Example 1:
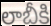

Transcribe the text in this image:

లాబీకి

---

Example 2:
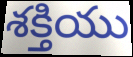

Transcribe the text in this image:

శక్తియు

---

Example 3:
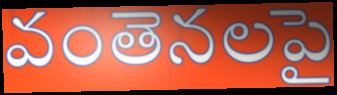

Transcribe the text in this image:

వంతెనలపై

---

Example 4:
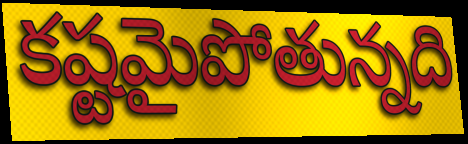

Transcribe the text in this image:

కష్టమైపోతున్నది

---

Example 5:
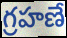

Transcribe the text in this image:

గ్రహణే